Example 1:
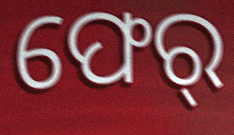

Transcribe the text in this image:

ଫେର୍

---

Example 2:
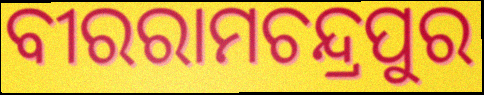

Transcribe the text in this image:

ବୀରରାମଚନ୍ଦ୍ରପୁର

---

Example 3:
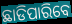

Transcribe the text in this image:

ଛାଡିପାରିବେ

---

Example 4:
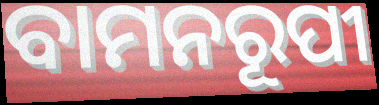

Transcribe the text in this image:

ବାମନରୂପୀ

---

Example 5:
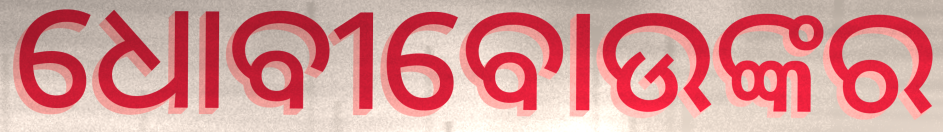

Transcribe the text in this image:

ଧୋବୀବୋଉଙ୍କର